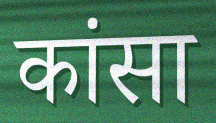
कांसा